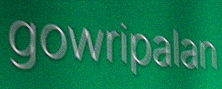
gowripalan